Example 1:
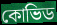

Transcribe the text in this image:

কোভিড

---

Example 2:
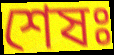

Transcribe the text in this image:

শেষঃ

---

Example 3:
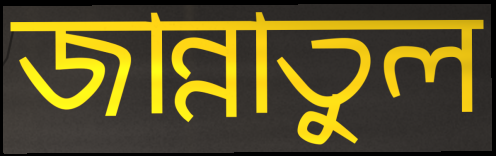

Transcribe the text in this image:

জান্নাতুল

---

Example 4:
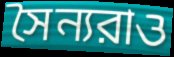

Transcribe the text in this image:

সৈন্যরাও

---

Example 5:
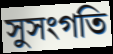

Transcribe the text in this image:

সুসংগতি